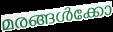
മരങ്ങൾക്കോ